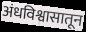
अंधविश्वासातून